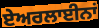
ਏਅਰਲਾਈਨਾਂ